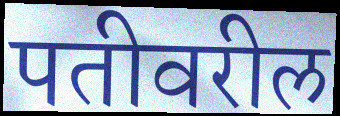
पतीवरील